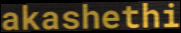
akashethi